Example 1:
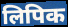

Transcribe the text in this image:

लिपिक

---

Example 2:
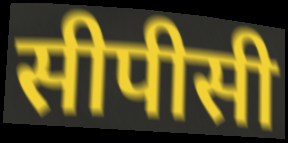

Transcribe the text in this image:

सीपीसी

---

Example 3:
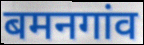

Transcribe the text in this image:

बमनगांव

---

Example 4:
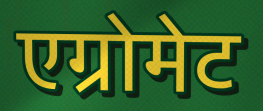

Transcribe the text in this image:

एग्रोमेट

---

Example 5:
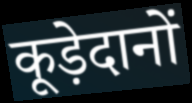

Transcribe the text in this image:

कूड़ेदानों